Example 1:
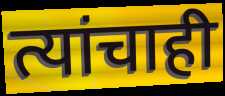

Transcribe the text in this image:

त्यांचाही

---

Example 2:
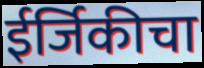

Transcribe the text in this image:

ईर्जिकीचा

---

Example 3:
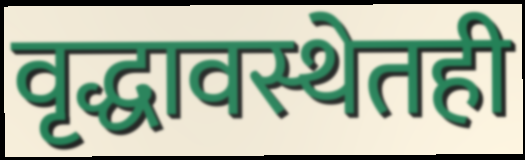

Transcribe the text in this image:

वृद्धावस्थेतही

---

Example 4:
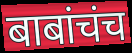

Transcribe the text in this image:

बाबांचंच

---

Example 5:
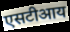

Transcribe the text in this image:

एसटीआय